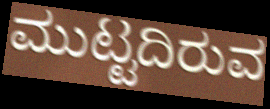
ಮುಟ್ಟದಿರುವ